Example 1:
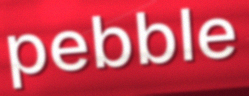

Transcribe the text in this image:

pebble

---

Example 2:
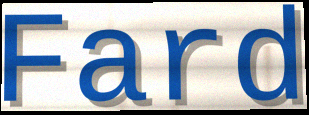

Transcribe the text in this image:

Fard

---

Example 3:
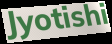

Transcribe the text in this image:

Jyotishi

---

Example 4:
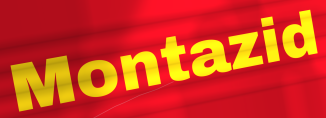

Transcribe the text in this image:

Montazid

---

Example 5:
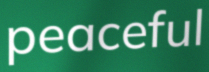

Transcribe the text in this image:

peaceful